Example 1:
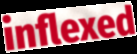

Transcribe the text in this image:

inflexed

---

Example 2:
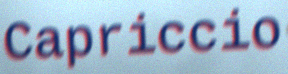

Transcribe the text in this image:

Capriccio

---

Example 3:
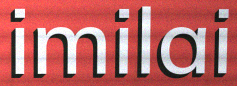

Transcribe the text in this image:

imilai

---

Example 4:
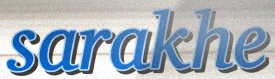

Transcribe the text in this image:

sarakhe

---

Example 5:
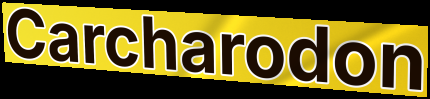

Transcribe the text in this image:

Carcharodon